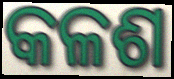
କଳଶ